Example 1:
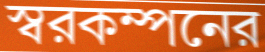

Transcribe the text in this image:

স্বরকম্পনের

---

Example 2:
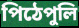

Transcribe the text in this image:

পিঠেপুলি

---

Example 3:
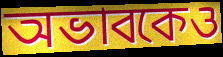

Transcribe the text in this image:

অভাবকেও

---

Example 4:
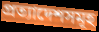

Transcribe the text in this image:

প্রত্যাদেশসমূহ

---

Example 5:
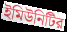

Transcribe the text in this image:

ইমিউনিটির